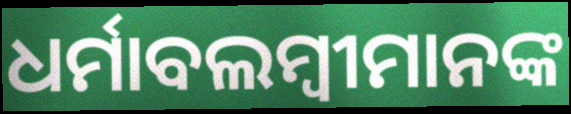
ଧର୍ମାବଲମ୍ବୀମାନଙ୍କ